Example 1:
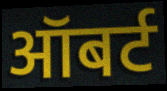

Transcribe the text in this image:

ऑबर्ट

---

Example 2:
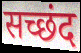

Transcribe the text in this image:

सच्छंद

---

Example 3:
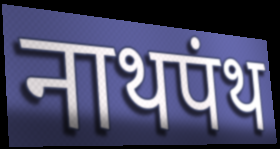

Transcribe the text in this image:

नाथपंथ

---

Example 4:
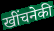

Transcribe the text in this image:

खींचनेकी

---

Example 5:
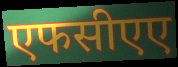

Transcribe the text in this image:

एफसीएए